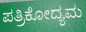
ಪತ್ರಿಕೋದ್ಯಮ